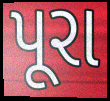
પૂરા